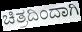
ಚಿತ್ರದಿಂದಾಗಿ